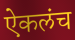
ऐकलंच